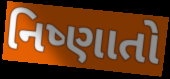
નિષ્ણાતો